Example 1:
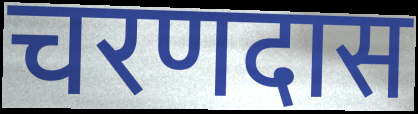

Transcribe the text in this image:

चरणदास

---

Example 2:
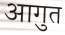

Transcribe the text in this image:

आगुत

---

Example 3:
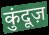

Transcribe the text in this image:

कुंदूज़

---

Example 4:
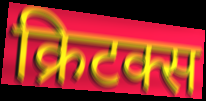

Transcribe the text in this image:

क्रिटक्स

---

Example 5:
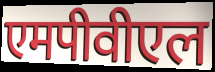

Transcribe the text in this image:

एमपीवीएल